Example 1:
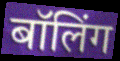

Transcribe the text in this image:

बॉलिंग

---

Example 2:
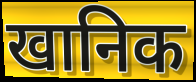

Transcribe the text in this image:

खानिक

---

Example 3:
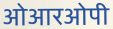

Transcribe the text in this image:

ओआरओपी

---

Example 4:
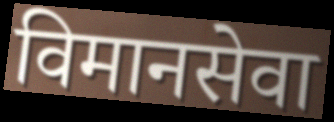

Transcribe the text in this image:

विमानसेवा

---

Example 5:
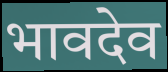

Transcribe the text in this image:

भावदेव